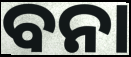
ବନା